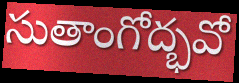
సుతాంగోద్భవో